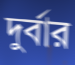
দুর্বার